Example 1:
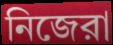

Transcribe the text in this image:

নিজেরা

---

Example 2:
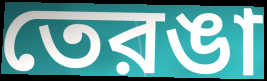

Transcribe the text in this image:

তেরঙা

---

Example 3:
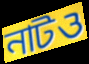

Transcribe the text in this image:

নাটও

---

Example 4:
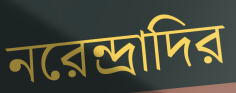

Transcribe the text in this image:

নরেন্দ্রাদির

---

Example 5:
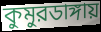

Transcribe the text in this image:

কুমুরডাঙ্গায়